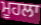
ਮੂਹਲਾ